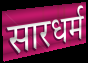
सारधर्म